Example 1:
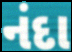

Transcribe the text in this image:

નંદા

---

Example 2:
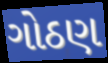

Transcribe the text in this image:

ગોઠણ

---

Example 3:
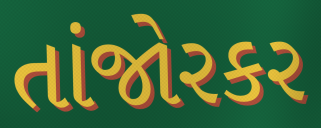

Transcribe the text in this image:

તાંજોરકર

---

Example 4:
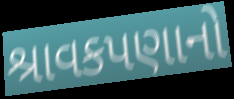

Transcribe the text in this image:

શ્રાવકપણાનો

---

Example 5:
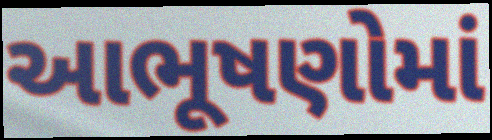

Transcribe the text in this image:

આભૂષણોમાં